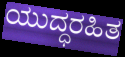
ಯುದ್ಧರಹಿತ